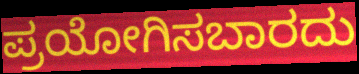
ಪ್ರಯೋಗಿಸಬಾರದು